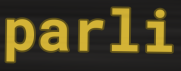
parli